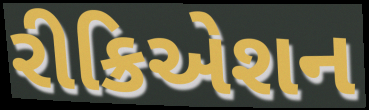
રીક્રિએશન